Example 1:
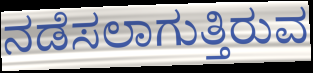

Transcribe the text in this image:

ನಡೆಸಲಾಗುತ್ತಿರುವ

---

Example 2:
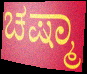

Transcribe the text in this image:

ಚಷ್ಮಾ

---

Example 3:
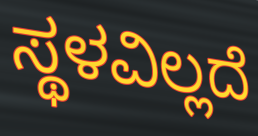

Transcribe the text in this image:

ಸ್ಥಳವಿಲ್ಲದೆ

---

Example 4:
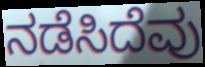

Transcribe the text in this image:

ನಡೆಸಿದೆವು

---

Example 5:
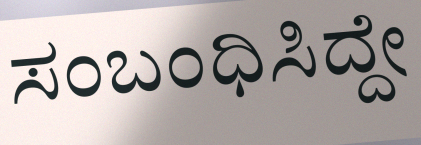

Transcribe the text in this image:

ಸಂಬಂಧಿಸಿದ್ದೇ